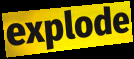
explode